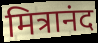
मित्रानंद